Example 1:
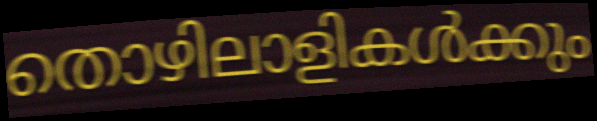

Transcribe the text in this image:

തൊഴിലാളികൾക്കും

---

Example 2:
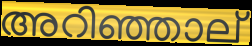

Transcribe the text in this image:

അറിഞ്ഞാല്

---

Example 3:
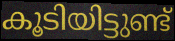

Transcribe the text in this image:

കൂടിയിട്ടുണ്ട്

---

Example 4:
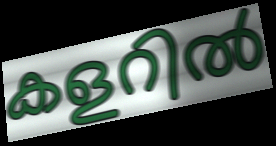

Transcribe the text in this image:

കളറിൽ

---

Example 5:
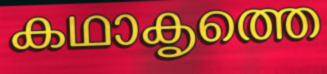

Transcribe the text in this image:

കഥാകൃത്തെ